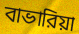
বাভারিয়া